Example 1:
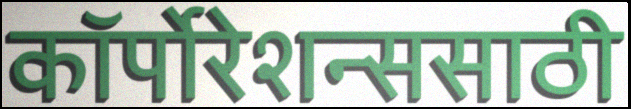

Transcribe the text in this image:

कॉर्पोरेशन्ससाठी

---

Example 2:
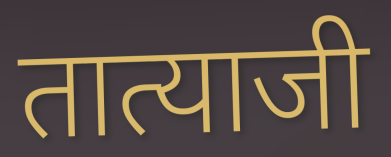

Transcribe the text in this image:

तात्याजी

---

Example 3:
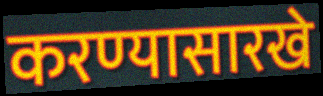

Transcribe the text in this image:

करण्यासारखे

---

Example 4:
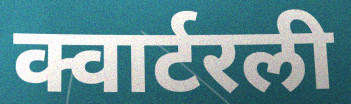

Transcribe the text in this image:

क्वार्टरली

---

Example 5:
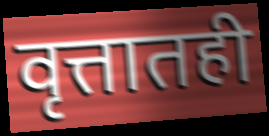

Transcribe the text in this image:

वृत्तातही